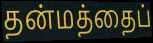
தன்மத்தைப்